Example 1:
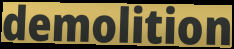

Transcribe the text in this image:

demolition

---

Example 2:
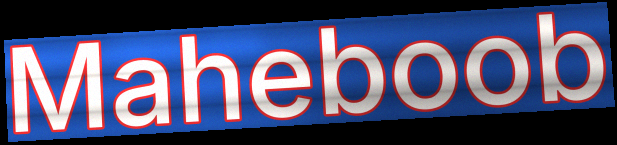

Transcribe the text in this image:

Maheboob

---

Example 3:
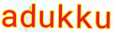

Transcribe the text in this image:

adukku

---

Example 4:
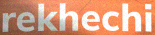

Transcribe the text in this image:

rekhechi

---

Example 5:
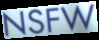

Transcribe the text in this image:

NSFW